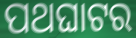
ପଥଘାଟର